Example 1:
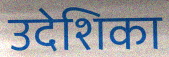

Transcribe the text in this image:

उदेशिका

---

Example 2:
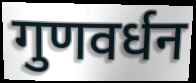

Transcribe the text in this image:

गुणवर्धन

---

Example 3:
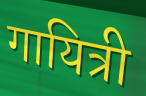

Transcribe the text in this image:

गायित्री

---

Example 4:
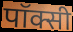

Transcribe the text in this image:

पॉक्सी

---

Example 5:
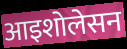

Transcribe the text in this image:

आइशोलेसन